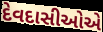
દેવદાસીઓએ